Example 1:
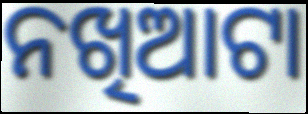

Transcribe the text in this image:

ନଖିଆଟା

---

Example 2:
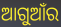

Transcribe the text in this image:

ଆଗୁଆଁର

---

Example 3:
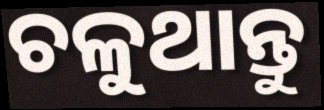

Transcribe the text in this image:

ଚଳୁଥାନ୍ତୁ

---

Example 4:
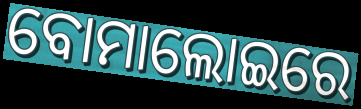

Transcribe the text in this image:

ବୋମାଲୋଇରେ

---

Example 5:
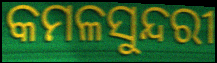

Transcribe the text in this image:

କମଳସୁନ୍ଦରୀ